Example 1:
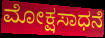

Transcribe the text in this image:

ಮೋಕ್ಷಸಾಧನೆ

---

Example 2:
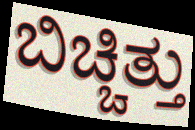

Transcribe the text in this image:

ಬಿಚ್ಚಿತ್ತು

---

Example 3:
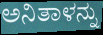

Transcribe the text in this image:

ಅನಿತಾಳನ್ನು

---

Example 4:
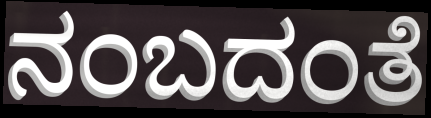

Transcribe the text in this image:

ನಂಬದಂತೆ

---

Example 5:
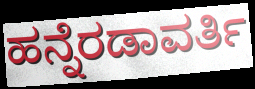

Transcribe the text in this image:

ಹನ್ನೆರಡಾವರ್ತಿ